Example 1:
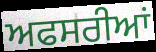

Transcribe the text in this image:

ਅਫਸਰੀਆਂ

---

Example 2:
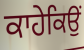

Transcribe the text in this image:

ਕਾਹੇਕਿਉਂ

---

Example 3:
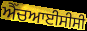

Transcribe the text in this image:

ਐੱਚਆਈਸੀਸੀ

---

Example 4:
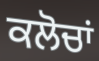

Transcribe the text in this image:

ਕਲੋਚਾਂ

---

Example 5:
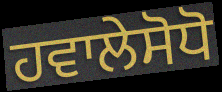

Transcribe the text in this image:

ਹਵਾਲੇਸੋਧੋ